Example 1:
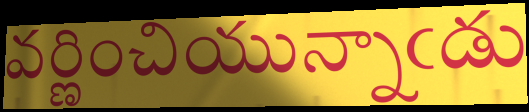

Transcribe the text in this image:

వర్ణించియున్నాఁడు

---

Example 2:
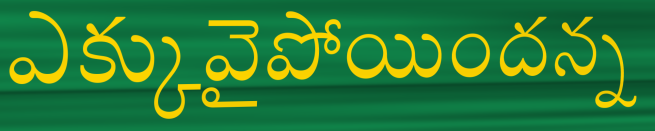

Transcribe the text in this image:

ఎక్కువైపోయిందన్న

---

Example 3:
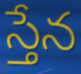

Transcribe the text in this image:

స్తేన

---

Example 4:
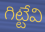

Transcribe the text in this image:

గిట్టేవి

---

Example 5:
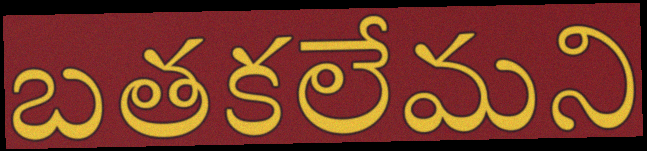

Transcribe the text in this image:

బతకలేమని